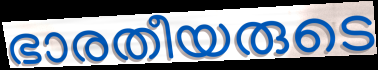
ഭാരതീയരുടെ